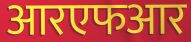
आरएफआर